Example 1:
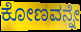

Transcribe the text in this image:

ಕೋಣವನ್ನೇ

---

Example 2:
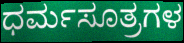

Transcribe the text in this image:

ಧರ್ಮಸೂತ್ರಗಳ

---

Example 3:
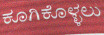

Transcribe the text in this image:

ಕೂಗಿಕೊಳ್ಳಲು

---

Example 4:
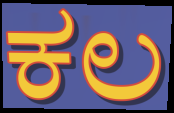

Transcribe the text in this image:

ಕಲ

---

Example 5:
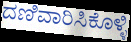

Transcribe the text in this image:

ದಣಿವಾರಿಸಿಕೊಳ್ಳಿ